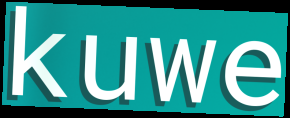
kuwe